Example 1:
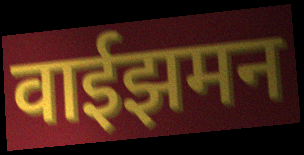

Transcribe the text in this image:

वाईझमन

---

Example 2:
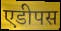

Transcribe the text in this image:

एडीपस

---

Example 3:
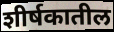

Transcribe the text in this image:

शीर्षकातील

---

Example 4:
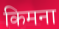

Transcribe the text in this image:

किमना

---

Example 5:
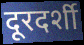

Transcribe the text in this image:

दूरदर्शी